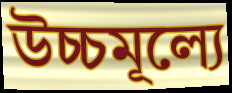
উচ্চমূল্যে